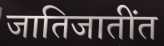
जातिजातींत